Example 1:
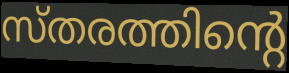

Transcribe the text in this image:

സ്തരത്തിന്റെ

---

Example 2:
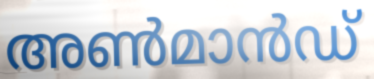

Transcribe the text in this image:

അൺമാൻഡ്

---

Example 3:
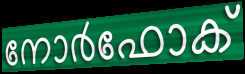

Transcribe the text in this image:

നോർഫോക്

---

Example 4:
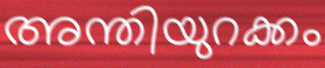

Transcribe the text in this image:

അന്തിയുറക്കം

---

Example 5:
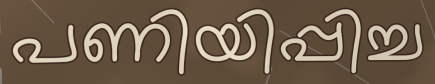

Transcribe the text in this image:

പണിയിപ്പിച്ച